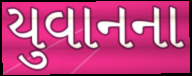
યુવાનના